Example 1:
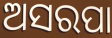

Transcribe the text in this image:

ଅସରପା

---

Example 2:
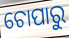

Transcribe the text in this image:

ଚୋପାରୁ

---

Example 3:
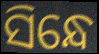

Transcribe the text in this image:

ସିନ୍ଧେ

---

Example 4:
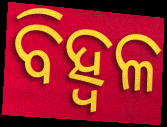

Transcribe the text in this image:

ବିହ୍ଵଳ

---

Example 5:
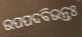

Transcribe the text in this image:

ଉପପଦବିଭନ୍ତଃ